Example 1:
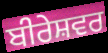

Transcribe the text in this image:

ਬੀਰੇਸ਼ਵਰ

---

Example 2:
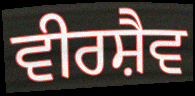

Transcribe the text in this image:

ਵੀਰਸ਼ੈਵ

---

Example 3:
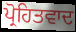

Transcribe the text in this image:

ਪ੍ਰੋਹਿਤਵਾਦ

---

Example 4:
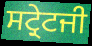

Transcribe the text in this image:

ਸਟ੍ਰੇਟਜੀ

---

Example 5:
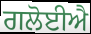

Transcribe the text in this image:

ਗਲੋਈਐ